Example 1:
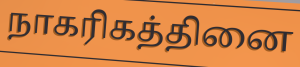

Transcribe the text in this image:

நாகரிகத்தினை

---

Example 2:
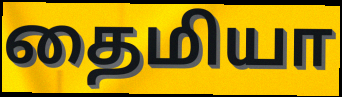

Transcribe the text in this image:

தைமியா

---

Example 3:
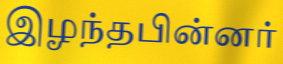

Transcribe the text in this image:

இழந்தபின்னர்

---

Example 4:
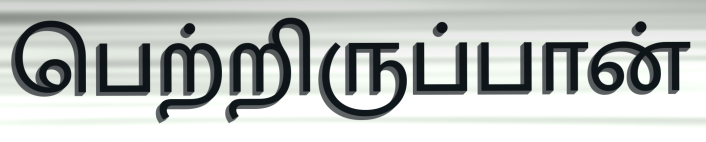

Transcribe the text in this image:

பெற்றிருப்பான்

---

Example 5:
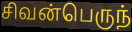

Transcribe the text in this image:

சிவன்பெருந்